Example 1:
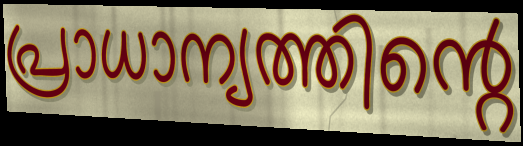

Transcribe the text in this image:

പ്രാധാന്യത്തിന്റെ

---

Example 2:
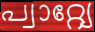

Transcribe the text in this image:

പ്വാറ്റ്യേ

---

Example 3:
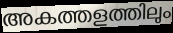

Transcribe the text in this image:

അകത്തളത്തിലും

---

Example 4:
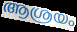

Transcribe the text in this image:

ആശ്രയം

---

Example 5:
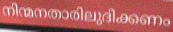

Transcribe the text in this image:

നിന്മനതാരിലുദിക്കണം